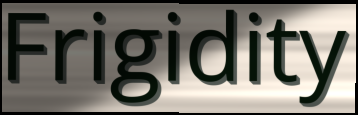
Frigidity